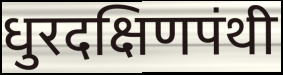
धुरदक्षिणपंथी